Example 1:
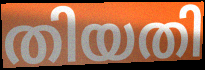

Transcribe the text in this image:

തിയതി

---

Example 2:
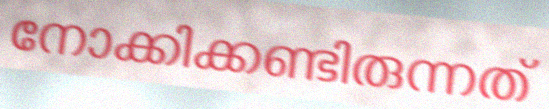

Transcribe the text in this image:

നോക്കിക്കണ്ടിരുന്നത്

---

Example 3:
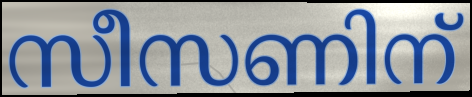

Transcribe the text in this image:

സീസണിന്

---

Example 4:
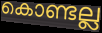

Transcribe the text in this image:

കൊണ്ടല്ല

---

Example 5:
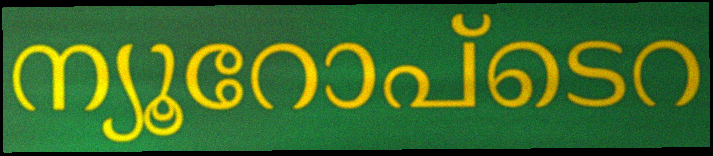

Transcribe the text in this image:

ന്യൂറോപ്ടെറ